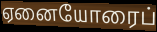
ஏனையோரைப்